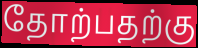
தோற்பதற்கு